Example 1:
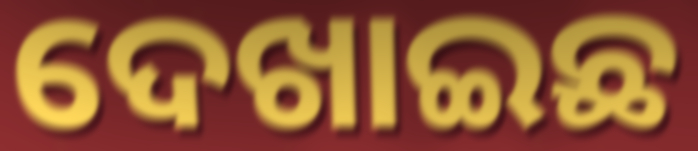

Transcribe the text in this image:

ଦେଖାଇଛ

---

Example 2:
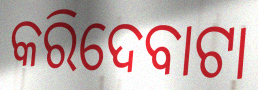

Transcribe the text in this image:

କରିଦେବାଟା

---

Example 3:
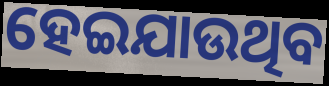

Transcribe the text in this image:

ହେଇଯାଉଥିବ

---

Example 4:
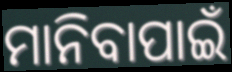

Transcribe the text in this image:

ମାନିବାପାଇଁ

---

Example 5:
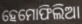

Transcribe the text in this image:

ହେମୋଫିଲିଆ